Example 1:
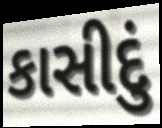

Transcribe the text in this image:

કાસીદું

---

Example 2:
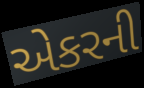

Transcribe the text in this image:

એકરની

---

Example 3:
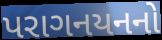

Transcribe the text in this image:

પરાગનયનનો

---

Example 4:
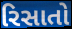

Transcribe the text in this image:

રિસાતો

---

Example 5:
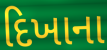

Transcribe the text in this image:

દિખાના